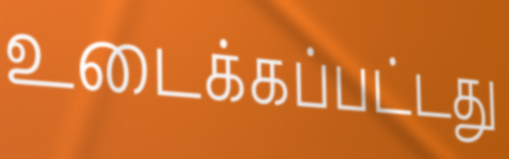
உடைக்கப்பட்டது